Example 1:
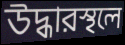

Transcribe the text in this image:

উদ্ধারস্থলে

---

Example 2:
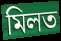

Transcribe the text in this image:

মিলত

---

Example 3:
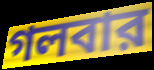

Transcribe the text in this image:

গলবার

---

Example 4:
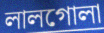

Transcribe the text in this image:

লালগোলা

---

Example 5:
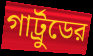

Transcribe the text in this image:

গার্ট্রুডের